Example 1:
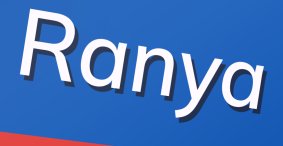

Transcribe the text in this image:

Ranya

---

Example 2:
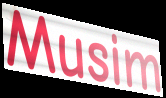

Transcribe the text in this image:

Musim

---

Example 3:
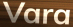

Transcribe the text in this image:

Vara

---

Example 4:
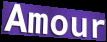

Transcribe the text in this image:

Amour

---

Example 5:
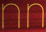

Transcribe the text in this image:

nn